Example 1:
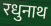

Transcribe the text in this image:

रधुनाथ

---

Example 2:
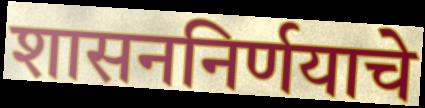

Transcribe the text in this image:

शासननिर्णयाचे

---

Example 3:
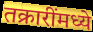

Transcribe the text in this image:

तक्रारींमध्ये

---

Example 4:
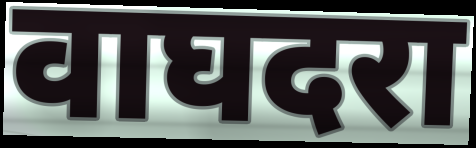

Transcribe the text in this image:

वाघदरा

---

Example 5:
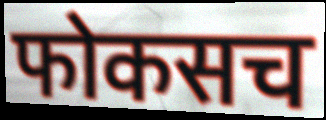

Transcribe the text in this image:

फोकसच